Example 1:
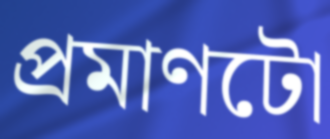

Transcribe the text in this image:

প্ৰমাণটো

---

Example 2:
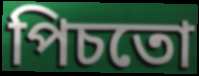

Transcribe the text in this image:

পিচতো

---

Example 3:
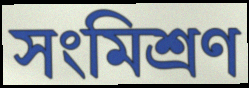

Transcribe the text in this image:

সংমিশ্ৰণ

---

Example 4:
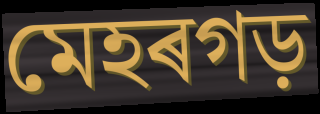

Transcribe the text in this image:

মেহৰগড়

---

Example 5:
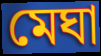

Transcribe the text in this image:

মেঘা